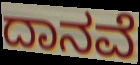
ದಾನವೆ